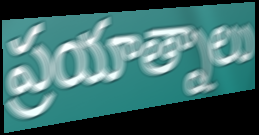
ప్రయాత్నాలు